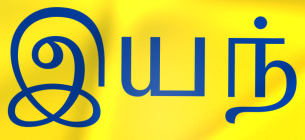
இயந்